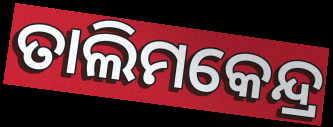
ତାଲିମକେନ୍ଦ୍ର